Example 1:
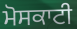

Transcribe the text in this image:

ਮੋਸਕਾਟੀ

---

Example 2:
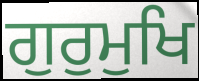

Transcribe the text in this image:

ਗੁਰੁਮੁਖਿ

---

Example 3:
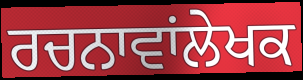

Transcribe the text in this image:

ਰਚਨਾਵਾਂਲੇਖਕ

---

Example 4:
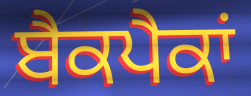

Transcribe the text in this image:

ਬੈਕਪੈਕਾਂ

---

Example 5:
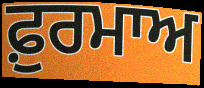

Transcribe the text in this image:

ਫ਼ੁਰਮਾਅ